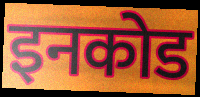
इनकोड